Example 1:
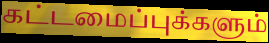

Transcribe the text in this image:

கட்டமைப்புக்களும்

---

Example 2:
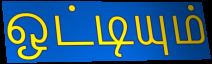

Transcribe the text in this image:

ஒட்டியும்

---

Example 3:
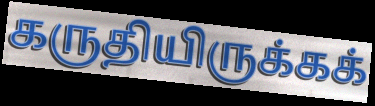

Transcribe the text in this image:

கருதியிருக்கக்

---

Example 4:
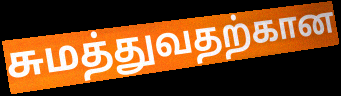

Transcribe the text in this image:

சுமத்துவதற்கான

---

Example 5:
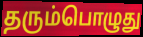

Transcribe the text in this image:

தரும்பொழுது